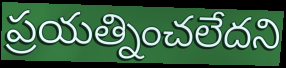
ప్రయత్నించలేదని